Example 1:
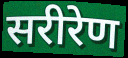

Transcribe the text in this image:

सरीरेण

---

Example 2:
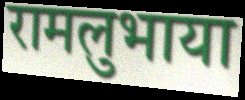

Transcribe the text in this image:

रामलुभाया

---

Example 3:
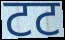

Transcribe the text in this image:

टट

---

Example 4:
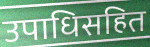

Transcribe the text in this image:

उपाधिसहित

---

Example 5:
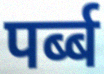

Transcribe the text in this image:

पर्ब्ब